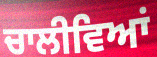
ਚਾਲੀਵਿਆਂ